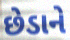
છેડાને